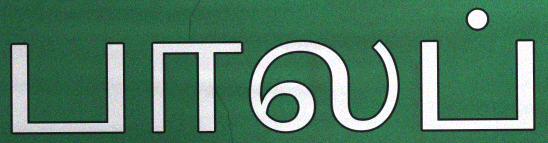
பாலப்